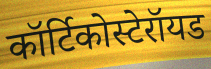
कॉर्टिकोस्टेरॉयड